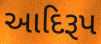
આદિરૂપ